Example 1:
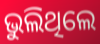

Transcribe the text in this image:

ଭୁଲିଥିଲେ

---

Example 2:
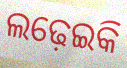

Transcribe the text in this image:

ଲଢ଼େଇକି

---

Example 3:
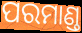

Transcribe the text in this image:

ପରମାଣ୍ଡ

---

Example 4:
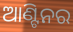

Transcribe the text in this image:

ଆଣ୍ଟିନର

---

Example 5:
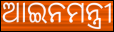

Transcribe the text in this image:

ଆଇନମନ୍ତ୍ରୀ